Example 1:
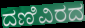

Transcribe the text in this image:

ದಣಿವಿರದ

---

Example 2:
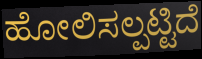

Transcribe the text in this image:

ಹೋಲಿಸಲ್ಪಟ್ಟಿದೆ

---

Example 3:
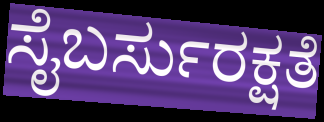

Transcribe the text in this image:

ಸೈಬರ್ಸುರಕ್ಷತೆ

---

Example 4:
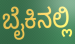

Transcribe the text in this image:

ಬೈಕಿನಲ್ಲಿ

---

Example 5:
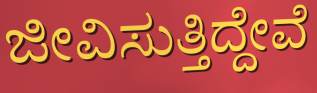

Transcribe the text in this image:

ಜೀವಿಸುತ್ತಿದ್ದೇವೆ